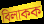
বিলাকক